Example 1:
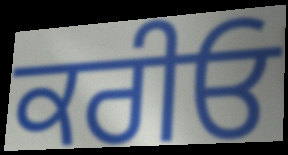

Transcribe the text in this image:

ਕਰੀਓ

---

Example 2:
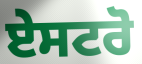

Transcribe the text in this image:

ਏਸਟਰੋ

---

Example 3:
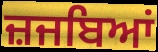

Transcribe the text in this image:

ਜ਼ਜਬਿਆਂ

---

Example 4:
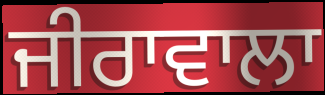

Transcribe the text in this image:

ਜੀਰਾਵਾਲਾ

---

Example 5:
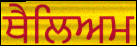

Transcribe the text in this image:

ਥੈਲਿਅਮ